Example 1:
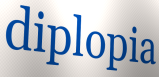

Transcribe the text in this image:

diplopia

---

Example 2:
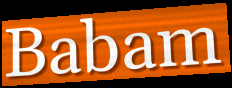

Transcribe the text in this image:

Babam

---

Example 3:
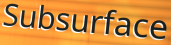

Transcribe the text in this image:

Subsurface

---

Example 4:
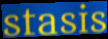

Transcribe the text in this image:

stasis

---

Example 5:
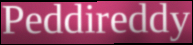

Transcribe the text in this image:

Peddireddy